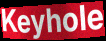
Keyhole